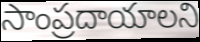
సాంప్రదాయాలని